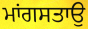
ਮਾਂਗਸਤਾਉ